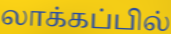
லாக்கப்பில்